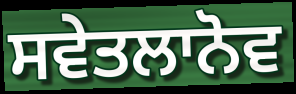
ਸਵੇਤਲਾਨੋਵ